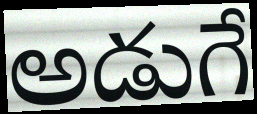
అడుగే